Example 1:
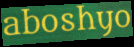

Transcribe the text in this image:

aboshyo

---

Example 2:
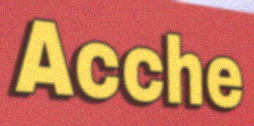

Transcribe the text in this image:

Acche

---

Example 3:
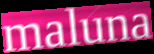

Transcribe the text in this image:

maluna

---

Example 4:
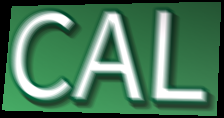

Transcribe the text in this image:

CAL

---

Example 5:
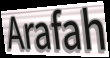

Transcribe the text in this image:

Arafah